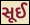
સૂઈ